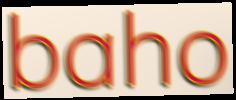
baho